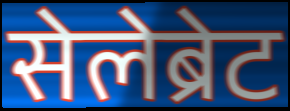
सेलेब्रेट